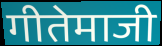
गीतेमाजी